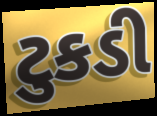
ટુકડી